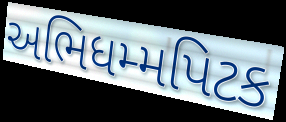
અભિધમ્મપિટક